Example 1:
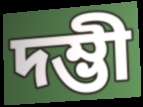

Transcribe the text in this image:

দম্ভী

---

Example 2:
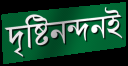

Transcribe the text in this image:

দৃষ্টিনন্দনই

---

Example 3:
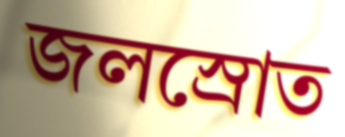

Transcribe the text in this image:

জলস্রোত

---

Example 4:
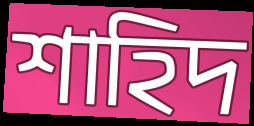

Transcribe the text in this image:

শাহিদ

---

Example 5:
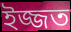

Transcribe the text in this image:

ইজ্জত